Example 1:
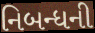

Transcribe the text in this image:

નિબન્ધની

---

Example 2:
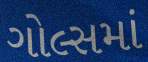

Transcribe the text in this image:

ગોલ્સમાં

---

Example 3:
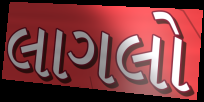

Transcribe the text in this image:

લાગલો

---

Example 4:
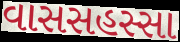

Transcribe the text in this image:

વાસસહસ્સા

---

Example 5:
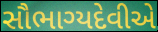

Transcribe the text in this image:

સૌભાગ્યદેવીએ